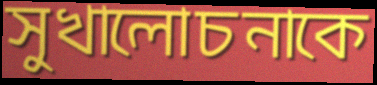
সুখালোচনাকে